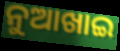
ନୁଆଖାଇ